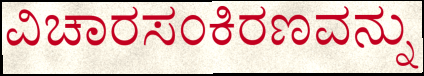
ವಿಚಾರಸಂಕಿರಣವನ್ನು